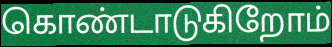
கொண்டாடுகிறோம்